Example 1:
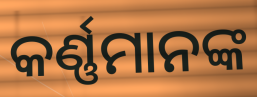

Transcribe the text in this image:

କର୍ଣ୍ଣମାନଙ୍କ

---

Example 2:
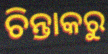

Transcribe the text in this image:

ଚିନ୍ତାକରୁ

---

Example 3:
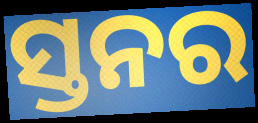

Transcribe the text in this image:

ସ୍ତନର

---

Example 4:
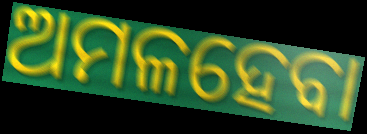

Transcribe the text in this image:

ଅମଳହେବା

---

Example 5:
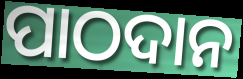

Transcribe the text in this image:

ପାଠଦାନ